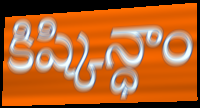
కిష్కిన్ధాం